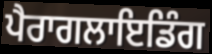
ਪੈਰਾਗਲਾਇਡਿੰਗ